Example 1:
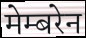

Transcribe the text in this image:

मेम्बरेन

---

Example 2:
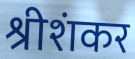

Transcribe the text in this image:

श्रीशंकर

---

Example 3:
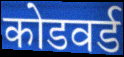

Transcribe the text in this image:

कोडवर्ड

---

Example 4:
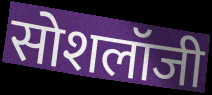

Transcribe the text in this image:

सोशलॉजी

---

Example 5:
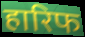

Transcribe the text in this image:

हारिफ